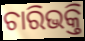
ଚାରିଭକ୍ତି